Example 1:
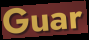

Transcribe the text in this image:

Guar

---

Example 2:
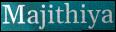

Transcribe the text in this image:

Majithiya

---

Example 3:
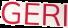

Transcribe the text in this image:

GERI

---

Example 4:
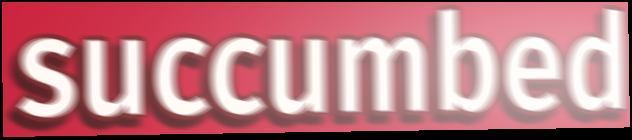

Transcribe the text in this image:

succumbed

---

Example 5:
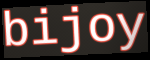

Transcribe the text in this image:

bijoy